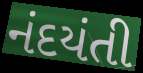
નંદયંતી